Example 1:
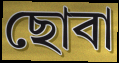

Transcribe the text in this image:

ছোবা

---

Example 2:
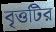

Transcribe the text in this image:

বৃত্তটির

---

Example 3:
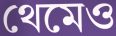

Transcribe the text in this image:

থেমেও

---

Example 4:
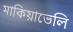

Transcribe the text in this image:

মাকিয়াভেলি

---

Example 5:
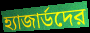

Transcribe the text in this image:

হ্যাজার্ডদের